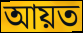
আয়ত